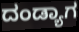
ದಂಡ್ಯಾಗ